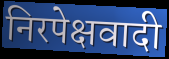
निरपेक्षवादी